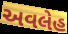
અવલેહ